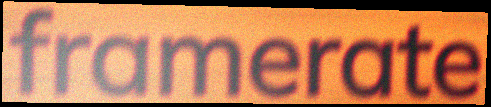
framerate